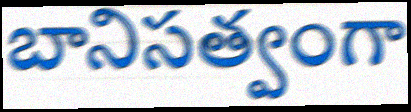
బానిసత్వంగా